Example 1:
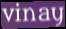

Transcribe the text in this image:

vinay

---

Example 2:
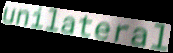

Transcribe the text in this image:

unilateral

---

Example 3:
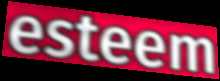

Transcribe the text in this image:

esteem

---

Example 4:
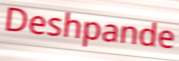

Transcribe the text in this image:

Deshpande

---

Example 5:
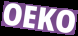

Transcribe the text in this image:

OEKO